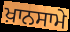
ਖ਼ਾਨਸਾਮੇ